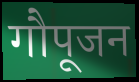
गौपूजन